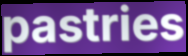
pastries